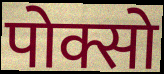
पोक्सो